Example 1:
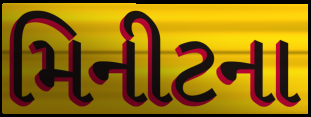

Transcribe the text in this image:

મિનીટના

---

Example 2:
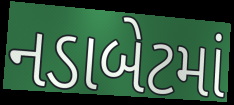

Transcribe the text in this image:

નડાબેટમાં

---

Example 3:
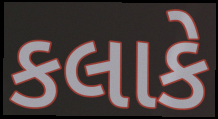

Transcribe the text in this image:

કલાકે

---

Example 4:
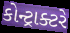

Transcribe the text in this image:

કોન્ટ્રાક્ટરે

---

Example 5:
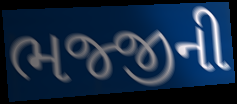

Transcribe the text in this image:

ભજ્જીની